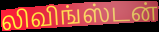
லிவிங்ஸ்டன்